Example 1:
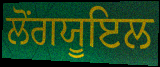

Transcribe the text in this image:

ਲੋਂਗਯੂਇਲ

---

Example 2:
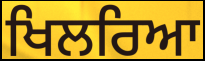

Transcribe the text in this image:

ਖਿਲਰਿਆ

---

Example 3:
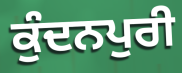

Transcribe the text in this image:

ਕੁੰਦਨਪੁਰੀ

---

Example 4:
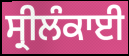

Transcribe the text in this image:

ਸ੍ਰੀਲੰਕਾਈ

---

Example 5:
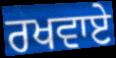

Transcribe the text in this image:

ਰਖਵਾਏ